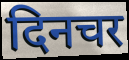
दिनचर